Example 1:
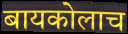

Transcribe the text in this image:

बायकोलाच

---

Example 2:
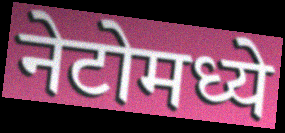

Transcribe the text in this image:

नेटोमध्ये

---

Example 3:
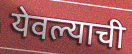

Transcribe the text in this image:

येवल्याची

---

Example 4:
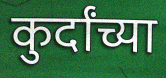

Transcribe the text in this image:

कुर्दांच्या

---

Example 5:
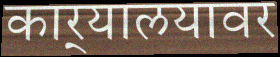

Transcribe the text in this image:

कार्यालयावर